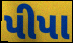
પીપા